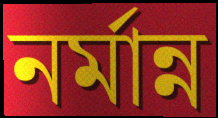
নর্মান্ন